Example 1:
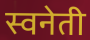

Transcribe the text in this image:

स्वनेती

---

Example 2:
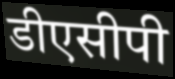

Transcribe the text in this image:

डीएसीपी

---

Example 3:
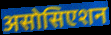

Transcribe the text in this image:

असोसिएशन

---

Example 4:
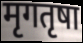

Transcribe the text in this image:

मृगतृषा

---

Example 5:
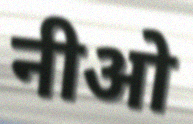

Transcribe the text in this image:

नीओ